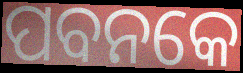
ପବନକେ